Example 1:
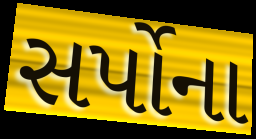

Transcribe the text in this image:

સર્પોના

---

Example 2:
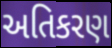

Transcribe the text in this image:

અતિકરણ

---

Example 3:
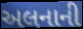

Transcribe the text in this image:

અલનાની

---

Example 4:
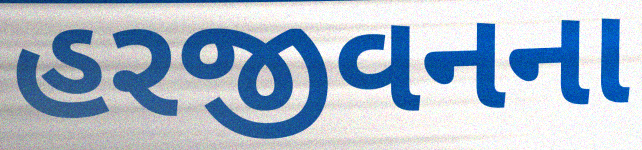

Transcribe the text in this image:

હરજીવનના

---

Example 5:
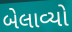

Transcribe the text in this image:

બેલાવ્યો